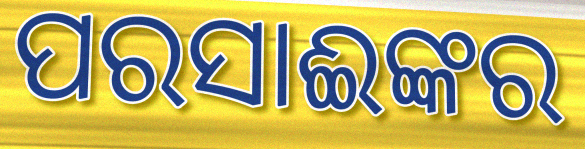
ପରସାଈଙ୍କର